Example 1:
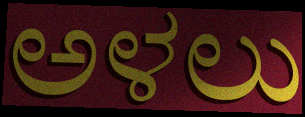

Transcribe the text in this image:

ಅಳಲು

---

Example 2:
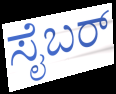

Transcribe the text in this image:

ಸೈಬರ್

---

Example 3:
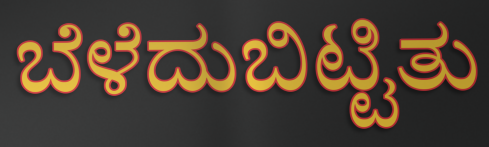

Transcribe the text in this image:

ಬೆಳೆದುಬಿಟ್ಟಿತು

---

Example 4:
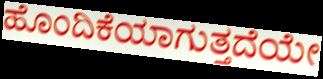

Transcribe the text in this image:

ಹೊಂದಿಕೆಯಾಗುತ್ತದೆಯೇ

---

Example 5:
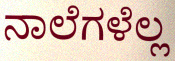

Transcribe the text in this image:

ನಾಲೆಗಳೆಲ್ಲ